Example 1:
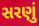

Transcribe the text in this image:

સરણું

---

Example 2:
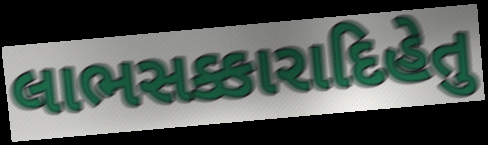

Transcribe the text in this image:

લાભસક્કારાદિહેતુ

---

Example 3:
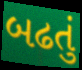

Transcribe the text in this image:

બઢતું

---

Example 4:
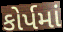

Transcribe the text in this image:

કોર્પમાં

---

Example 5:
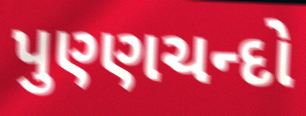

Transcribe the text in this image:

પુણ્ણચન્દો